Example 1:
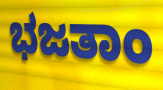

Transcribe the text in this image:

ಭಜತಾಂ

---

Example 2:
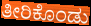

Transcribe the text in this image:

ತೀರಿಕೊಂಡು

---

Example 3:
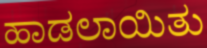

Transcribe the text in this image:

ಹಾಡಲಾಯಿತು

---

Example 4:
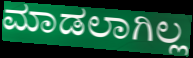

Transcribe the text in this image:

ಮಾಡಲಾಗಿಲ್ಲ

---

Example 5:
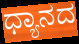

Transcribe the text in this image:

ಧ್ಯಾನದ